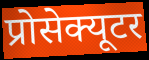
प्रोसेक्यूटर